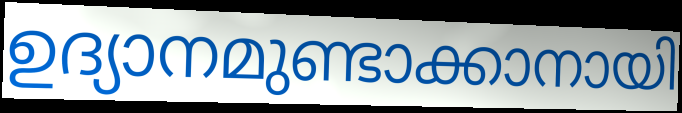
ഉദ്യാനമുണ്ടാക്കാനായി